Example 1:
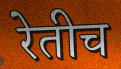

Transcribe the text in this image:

रेतीच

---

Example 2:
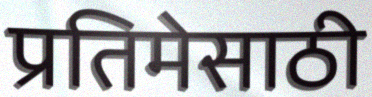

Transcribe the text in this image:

प्रतिमेसाठी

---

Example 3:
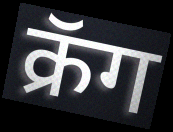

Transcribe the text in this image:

क्रॅग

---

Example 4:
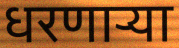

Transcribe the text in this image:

धरणाऱ्या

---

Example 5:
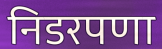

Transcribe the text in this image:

निडरपणा